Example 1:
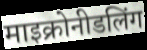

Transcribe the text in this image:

माइक्रोनीडलिंग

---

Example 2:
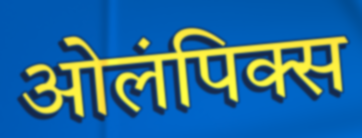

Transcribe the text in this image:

ओलंपिक्स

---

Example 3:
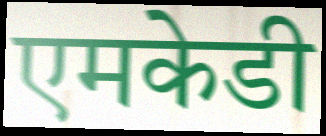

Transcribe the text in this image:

एमकेडी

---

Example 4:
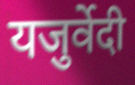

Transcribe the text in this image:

यजुर्वेदी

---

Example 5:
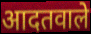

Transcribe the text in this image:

आदतवाले